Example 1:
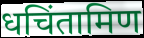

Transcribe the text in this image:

धचिंतामिण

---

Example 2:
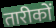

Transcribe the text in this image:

तारीकों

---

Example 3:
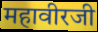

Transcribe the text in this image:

महावीरजी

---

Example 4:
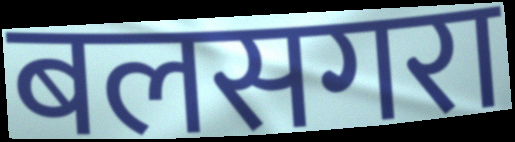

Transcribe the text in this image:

बलसगरा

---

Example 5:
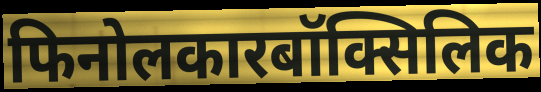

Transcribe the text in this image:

फिनोलकारबॉक्सिलिक